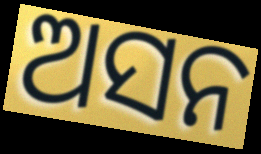
ଅସନ